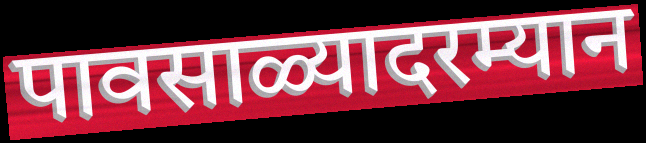
पावसाळ्यादरम्यान